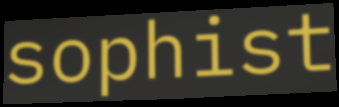
sophist